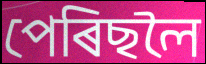
পেৰিছলৈ